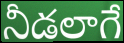
నీడలాగే